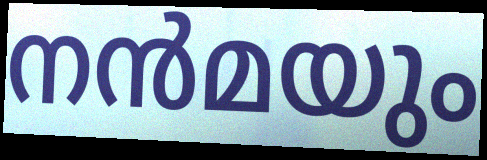
നൻമയും